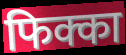
फिक्का